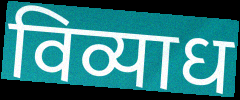
विव्याध